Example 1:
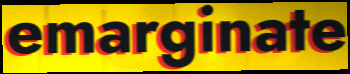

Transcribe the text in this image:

emarginate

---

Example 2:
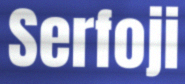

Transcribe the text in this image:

Serfoji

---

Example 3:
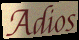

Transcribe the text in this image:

Adios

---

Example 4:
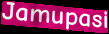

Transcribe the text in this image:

Jamupasi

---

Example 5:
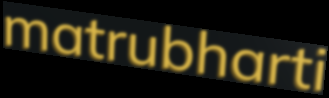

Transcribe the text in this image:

matrubharti